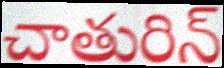
చాతురిన్